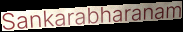
Sankarabharanam